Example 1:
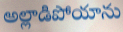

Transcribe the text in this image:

అల్లాడిపోయాను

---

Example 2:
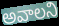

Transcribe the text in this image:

అవాలని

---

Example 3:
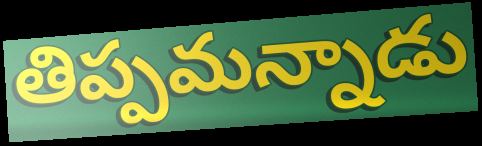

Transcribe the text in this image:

తిప్పమన్నాడు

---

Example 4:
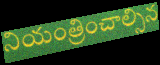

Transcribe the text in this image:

నియంత్రించాల్సిన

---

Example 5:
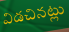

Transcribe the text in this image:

విడచినట్లు